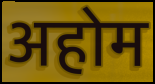
अहोम